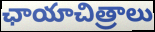
ఛాయాచిత్రాలు